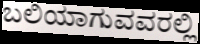
ಬಲಿಯಾಗುವವರಲ್ಲಿ